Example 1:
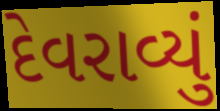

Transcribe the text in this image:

દેવરાવ્યું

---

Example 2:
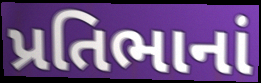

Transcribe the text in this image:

પ્રતિભાનાં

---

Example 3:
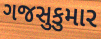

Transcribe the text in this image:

ગજસુકુમાર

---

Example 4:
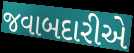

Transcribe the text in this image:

જવાબદારીએ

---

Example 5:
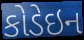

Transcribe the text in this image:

કોડેઇન